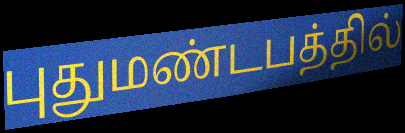
புதுமண்டபத்தில்